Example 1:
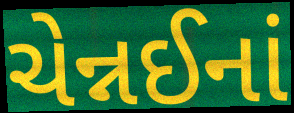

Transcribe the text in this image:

ચેન્નઈનાં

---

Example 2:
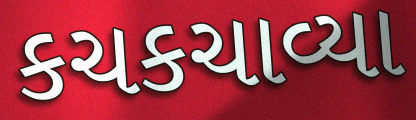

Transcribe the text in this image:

કચકચાવ્યા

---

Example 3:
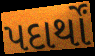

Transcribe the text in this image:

પદાર્થોં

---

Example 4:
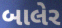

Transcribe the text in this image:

બાલેર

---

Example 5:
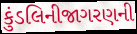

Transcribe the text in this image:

કુંડલિનીજાગરણની